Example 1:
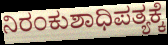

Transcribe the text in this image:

ನಿರಂಕುಶಾಧಿಪತ್ಯಕ್ಕೆ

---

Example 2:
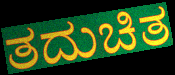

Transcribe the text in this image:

ತದುಚಿತ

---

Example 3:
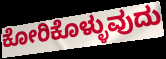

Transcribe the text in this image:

ಕೋರಿಕೊಳ್ಳುವುದು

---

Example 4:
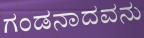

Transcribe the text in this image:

ಗಂಡನಾದವನು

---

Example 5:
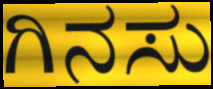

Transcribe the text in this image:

ಗಿನಸು